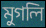
মুগলি